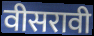
वीसरावी